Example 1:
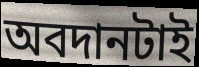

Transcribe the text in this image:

অবদানটাই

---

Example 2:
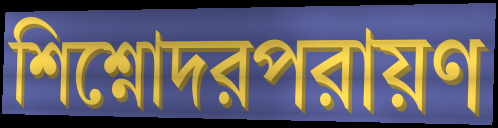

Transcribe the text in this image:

শিশ্নোদরপরায়ণ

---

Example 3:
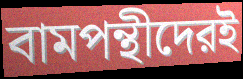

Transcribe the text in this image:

বামপন্থীদেরই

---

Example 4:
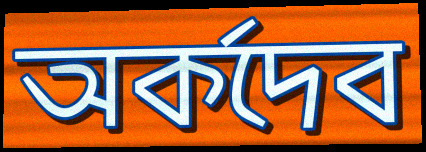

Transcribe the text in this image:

অর্কদেব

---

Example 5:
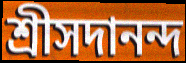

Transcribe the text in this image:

শ্রীসদানন্দ